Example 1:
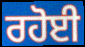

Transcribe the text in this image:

ਰਹੋਈ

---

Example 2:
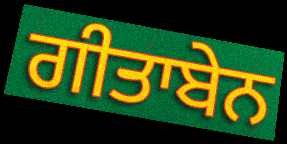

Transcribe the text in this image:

ਗੀਤਾਬੇਨ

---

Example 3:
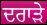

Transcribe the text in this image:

ਦਰਾੜੇ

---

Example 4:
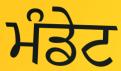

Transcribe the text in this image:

ਮੰਡੇਟ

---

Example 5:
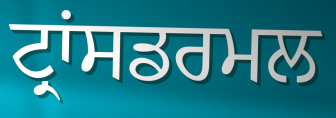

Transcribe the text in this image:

ਟ੍ਰਾਂਸਡਰਮਲ